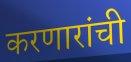
करणारांची